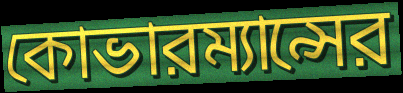
কোভারম্যান্সের